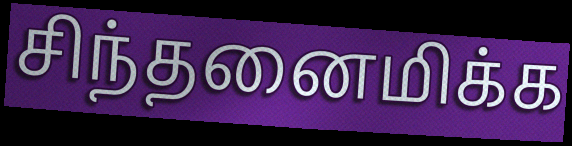
சிந்தனைமிக்க